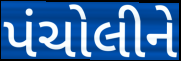
પંચોલીને